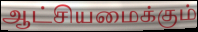
ஆட்சியமைக்கும்